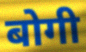
बोगी